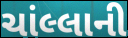
ચાંલ્લાની